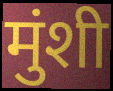
मुंशी